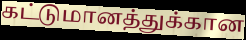
கட்டுமானத்துக்கான